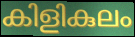
കിളികുലം